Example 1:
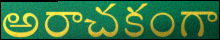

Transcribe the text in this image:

అరాచకంగా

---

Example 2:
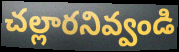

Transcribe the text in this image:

చల్లారనివ్వండి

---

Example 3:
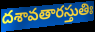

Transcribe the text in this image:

దశావతారస్తుతిః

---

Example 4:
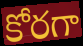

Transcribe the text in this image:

కోరగా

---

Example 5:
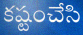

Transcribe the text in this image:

కష్టంచేసి